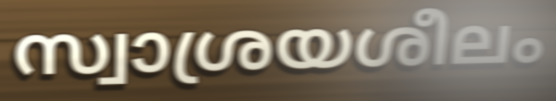
സ്വാശ്രയശീലം